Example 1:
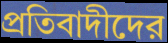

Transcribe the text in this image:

প্রতিবাদীদের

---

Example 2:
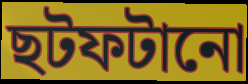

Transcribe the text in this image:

ছটফটানো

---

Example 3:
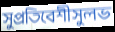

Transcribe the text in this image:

সুপ্রতিবেশীসুলভ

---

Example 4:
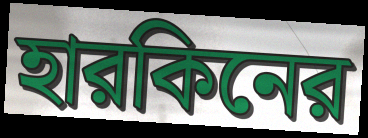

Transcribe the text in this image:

হারকিনের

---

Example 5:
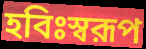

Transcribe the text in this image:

হবিঃস্বরূপ